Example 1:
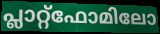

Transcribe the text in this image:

പ്ലാറ്റ്ഫോമിലോ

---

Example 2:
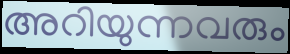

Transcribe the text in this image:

അറിയുന്നവരും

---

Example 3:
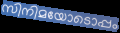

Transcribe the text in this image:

സിനിമയോടൊപ്പം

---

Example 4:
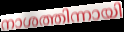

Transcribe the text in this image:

നാശത്തിന്നായി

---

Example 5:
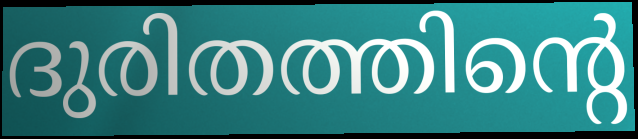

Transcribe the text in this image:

ദുരിതത്തിന്റെ